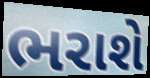
ભરાશે